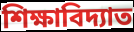
শিক্ষাবিদ্যাত